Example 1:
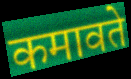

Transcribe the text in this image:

कमावते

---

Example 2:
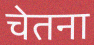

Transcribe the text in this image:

चेतना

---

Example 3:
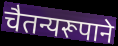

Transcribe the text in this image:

चैतन्यरूपाने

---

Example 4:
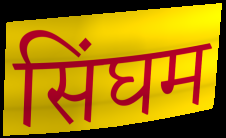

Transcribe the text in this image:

सिंघम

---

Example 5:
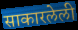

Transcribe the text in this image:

साकारलेली